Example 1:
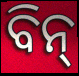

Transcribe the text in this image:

ବିନ୍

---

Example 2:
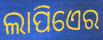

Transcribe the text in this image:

ଲାପିଏେର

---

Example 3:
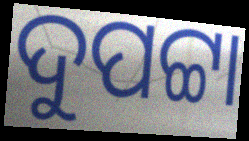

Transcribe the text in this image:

ଦୁପଟ୍ଟା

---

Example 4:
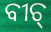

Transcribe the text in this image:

ବୀଚ୍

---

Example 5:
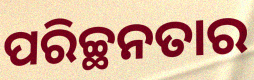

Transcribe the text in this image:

ପରିଚ୍ଛନତାର